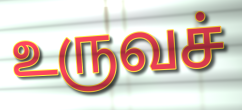
உருவச்